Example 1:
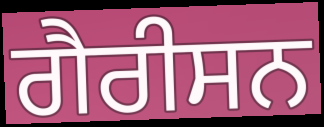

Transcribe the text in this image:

ਗੈਰੀਸਨ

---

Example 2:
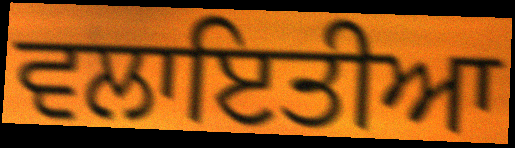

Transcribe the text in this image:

ਵਲਾਇਤੀਆ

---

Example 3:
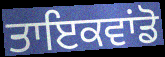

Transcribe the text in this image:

ਤਾਇਕਵਾਂਡੋ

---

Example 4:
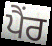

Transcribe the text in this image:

ਪੈਂਰ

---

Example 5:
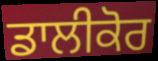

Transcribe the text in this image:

ਡਾਲੀਕੋਰ